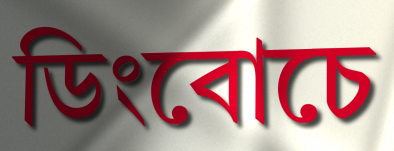
ডিংবোচে